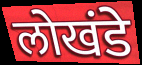
लोखंडे